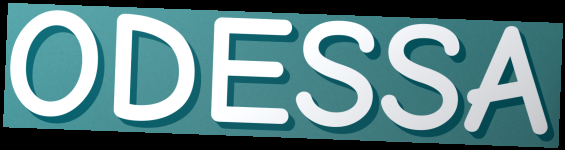
ODESSA